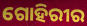
ଗୋହିରୀର